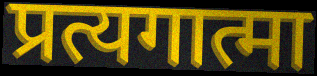
प्रत्यगात्मा